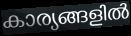
കാര്യങ്ങളിൽ